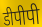
डीपीपी